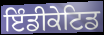
ਇੰਡੀਕੇਟਿਡ